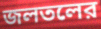
জলতলের